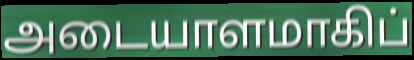
அடையாளமாகிப்